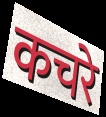
कचरे